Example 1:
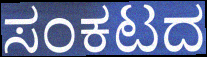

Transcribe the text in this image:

ಸಂಕಟದ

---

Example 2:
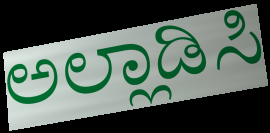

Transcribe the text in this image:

ಅಲ್ಲಾಡಿಸಿ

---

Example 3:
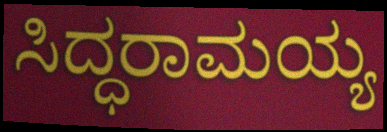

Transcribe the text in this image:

ಸಿದ್ಧರಾಮಯ್ಯ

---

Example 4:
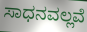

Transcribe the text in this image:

ಸಾಧನವಲ್ಲವೆ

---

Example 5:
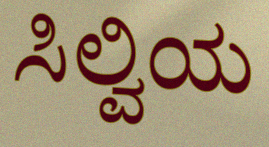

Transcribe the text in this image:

ಸಿಲ್ವಿಯ